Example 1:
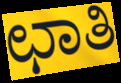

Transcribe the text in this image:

ಛಾತಿ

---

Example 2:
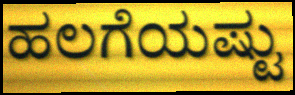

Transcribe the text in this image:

ಹಲಗೆಯಷ್ಟು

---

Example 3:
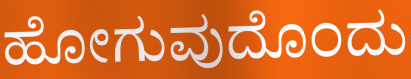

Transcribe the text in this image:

ಹೋಗುವುದೊಂದು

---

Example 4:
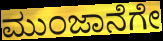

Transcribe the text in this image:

ಮುಂಜಾನೆಗೇ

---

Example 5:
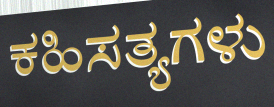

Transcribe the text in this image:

ಕಹಿಸತ್ಯಗಳು